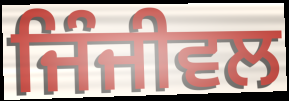
ਜਿੰਜੀਵਲ